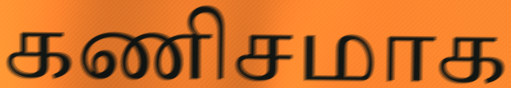
கணிசமாக